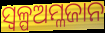
ସ୍ୱଳ୍ପଅମ୍ଳଜାନ